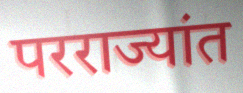
परराज्यांत